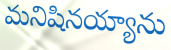
మనిషినయ్యాను